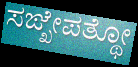
ಸಙ್ಖೇಪತ್ಥೋ